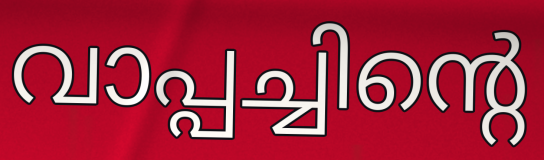
വാപ്പച്ചിന്റെ